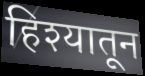
हिश्यातून